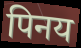
पिनय